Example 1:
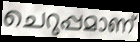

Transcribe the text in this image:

ചെറുപ്പമാണ്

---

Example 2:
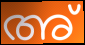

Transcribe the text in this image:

അ്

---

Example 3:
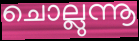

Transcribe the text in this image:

ചൊല്ലുന്നൂ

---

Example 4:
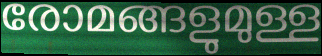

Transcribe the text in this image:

രോമങ്ങളുമുള്ള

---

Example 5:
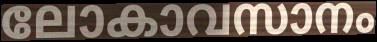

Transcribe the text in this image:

ലോകാവസാനം